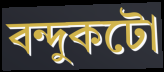
বন্দুকটো